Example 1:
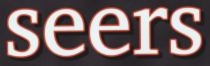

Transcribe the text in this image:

seers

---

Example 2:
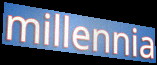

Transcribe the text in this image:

millennia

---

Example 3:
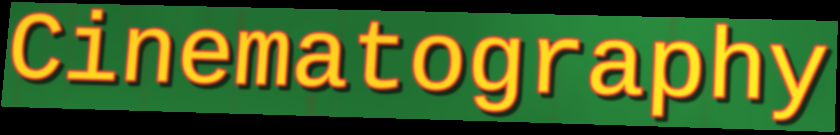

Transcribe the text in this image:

Cinematography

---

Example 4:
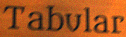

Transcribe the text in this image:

Tabular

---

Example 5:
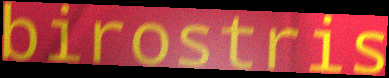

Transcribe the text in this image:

birostris